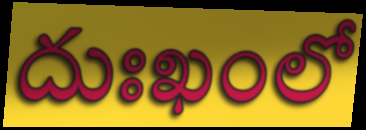
దుఃఖంలో